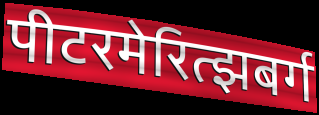
पीटरमेरित्झबर्ग